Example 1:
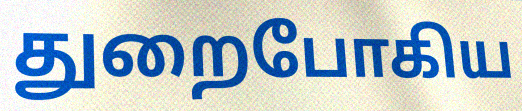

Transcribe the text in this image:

துறைபோகிய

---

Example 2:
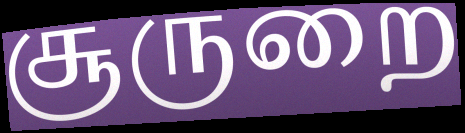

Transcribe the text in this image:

சூருறை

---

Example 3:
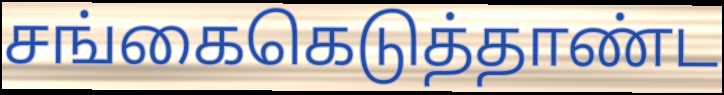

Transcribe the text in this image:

சங்கைகெடுத்தாண்ட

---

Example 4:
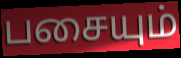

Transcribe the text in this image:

பசையும்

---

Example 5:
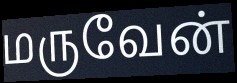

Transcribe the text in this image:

மருவேன்